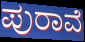
ಪುರಾವೆ